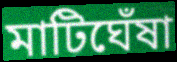
মাটিঘেঁষা